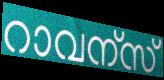
റാവന്സ്